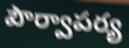
పౌర్వాపర్య